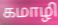
கமாழி